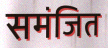
समंजित